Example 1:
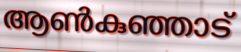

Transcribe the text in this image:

ആൺകുഞ്ഞാട്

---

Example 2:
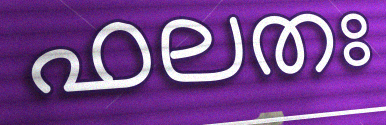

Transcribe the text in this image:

ഫലതഃ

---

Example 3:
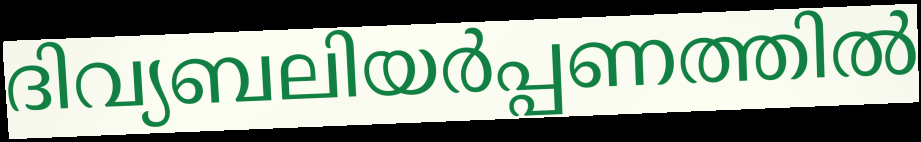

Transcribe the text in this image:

ദിവ്യബലിയർപ്പണത്തിൽ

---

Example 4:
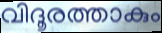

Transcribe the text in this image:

വിദൂരത്താകും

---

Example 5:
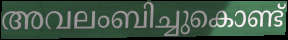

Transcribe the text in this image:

അവലംബിച്ചുകൊണ്ട്